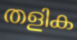
തളിക